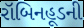
રૉબિનહૂડની